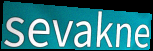
sevakne